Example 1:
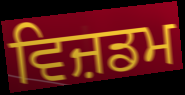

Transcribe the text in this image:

ਵਿਜ਼ਡਮ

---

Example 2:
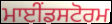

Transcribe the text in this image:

ਮਾਈਂਡਸਟੋਰਮ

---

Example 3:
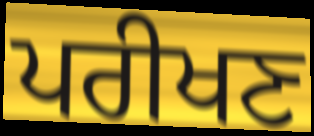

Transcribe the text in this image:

ਪਰੀਖਣ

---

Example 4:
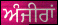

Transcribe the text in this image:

ਅੰਜੀਰਾਂ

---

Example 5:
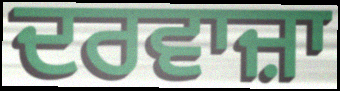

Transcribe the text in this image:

ਦਰਵਾਜ਼ਾ